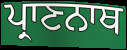
ਪ੍ਰਾਣਨਾਥ